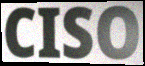
CISO